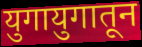
युगायुगातून